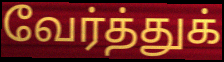
வேர்த்துக்